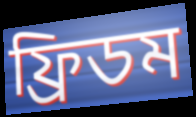
ফ্ৰিডম